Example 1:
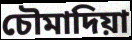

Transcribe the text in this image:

চৌমাদিয়া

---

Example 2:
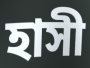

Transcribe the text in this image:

হাসী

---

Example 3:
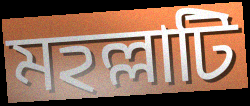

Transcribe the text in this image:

মহল্লাটি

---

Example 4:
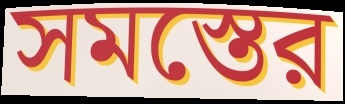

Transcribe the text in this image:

সমস্তের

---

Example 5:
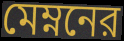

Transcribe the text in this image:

মেম্ননের